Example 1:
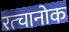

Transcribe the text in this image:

रत्चानोक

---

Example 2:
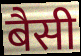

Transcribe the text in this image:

बैसी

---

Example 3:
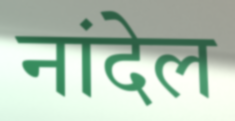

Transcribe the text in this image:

नांदेल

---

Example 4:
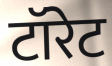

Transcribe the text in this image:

टॉरेट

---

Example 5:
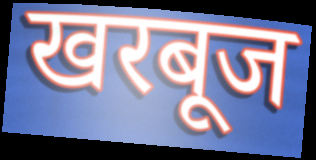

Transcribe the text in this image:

खरबूज